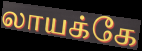
லாயக்கே